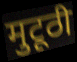
मुटूठी